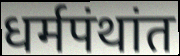
धर्मपंथांत